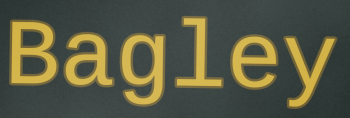
Bagley